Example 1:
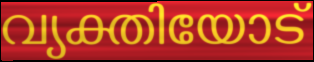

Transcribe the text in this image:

വ്യക്തിയോട്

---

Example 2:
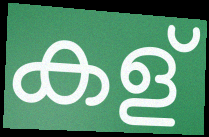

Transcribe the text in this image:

കള്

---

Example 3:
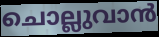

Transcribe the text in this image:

ചൊല്ലുവാൻ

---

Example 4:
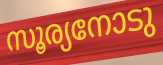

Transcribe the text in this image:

സൂര്യനോടു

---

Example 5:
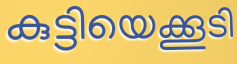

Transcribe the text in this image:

കുട്ടിയെക്കൂടി